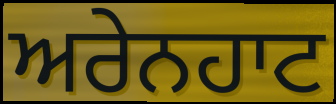
ਅਰੇਨਹਾਟ